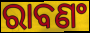
ରାବଣଂ